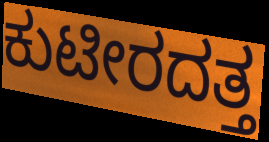
ಕುಟೀರದತ್ತ